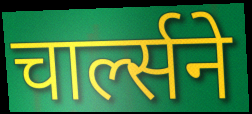
चार्ल्सने